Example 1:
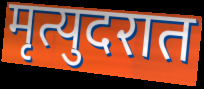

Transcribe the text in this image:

मृत्युदरात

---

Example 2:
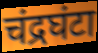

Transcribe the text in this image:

चंद्रघंटा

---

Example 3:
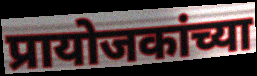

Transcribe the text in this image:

प्रायोजकांच्या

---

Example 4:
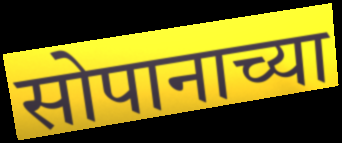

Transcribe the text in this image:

सोपानाच्या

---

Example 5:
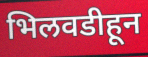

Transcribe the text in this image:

भिलवडीहून